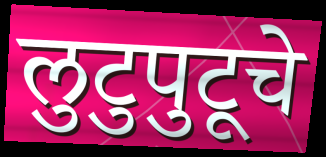
लुटुपुटूचे